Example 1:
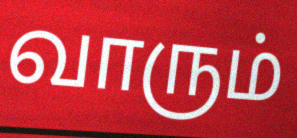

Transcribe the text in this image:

வாரும்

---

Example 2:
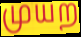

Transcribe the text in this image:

முயற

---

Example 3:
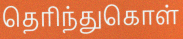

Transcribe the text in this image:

தெரிந்துகொள்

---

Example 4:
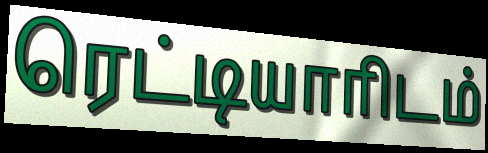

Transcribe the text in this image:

ரெட்டியாரிடம்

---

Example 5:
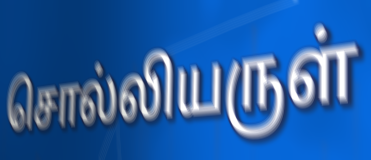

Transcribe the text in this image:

சொல்லியருள்